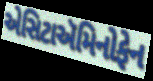
એસિટાઍમિનોફેન